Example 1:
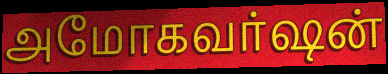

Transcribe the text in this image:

அமோகவர்ஷன்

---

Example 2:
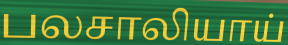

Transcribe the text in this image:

பலசாலியாய்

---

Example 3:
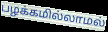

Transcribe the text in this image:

பழக்கமில்லாமல்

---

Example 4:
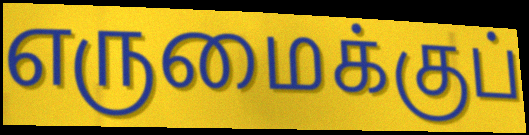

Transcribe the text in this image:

எருமைக்குப்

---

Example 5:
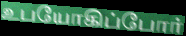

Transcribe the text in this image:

உபயோகிப்போர்